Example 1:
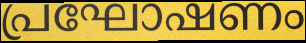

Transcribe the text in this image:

പ്രഘോഷണം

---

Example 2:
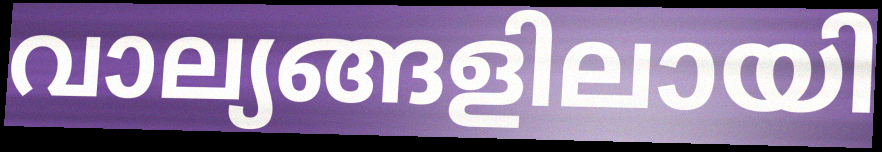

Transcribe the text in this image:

വാല്യങ്ങളിലായി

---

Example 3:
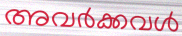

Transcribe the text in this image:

അവർക്കവൾ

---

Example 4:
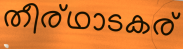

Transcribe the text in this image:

തീര്ഥാടകര്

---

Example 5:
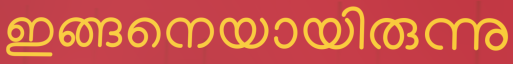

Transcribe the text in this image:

ഇങ്ങനെയായിരുന്നു